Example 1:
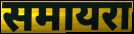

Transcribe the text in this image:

समायरा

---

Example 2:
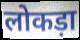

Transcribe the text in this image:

लोकड़ा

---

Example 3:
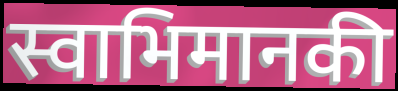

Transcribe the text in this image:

स्वाभिमानकी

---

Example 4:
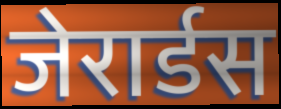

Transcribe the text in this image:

जेरार्डस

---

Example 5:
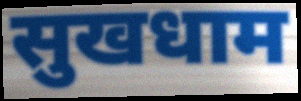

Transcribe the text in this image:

सुखधाम